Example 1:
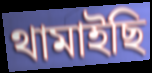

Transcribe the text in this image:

থামাইছি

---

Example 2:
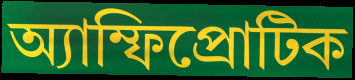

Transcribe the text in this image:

অ্যাম্ফিপ্রোটিক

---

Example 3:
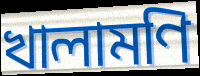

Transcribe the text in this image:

খালামণি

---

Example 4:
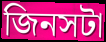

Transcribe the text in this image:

জিনসটা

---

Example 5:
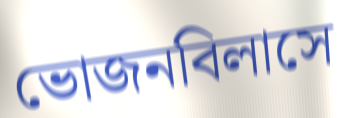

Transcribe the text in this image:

ভোজনবিলাসে